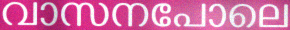
വാസനപോലെ